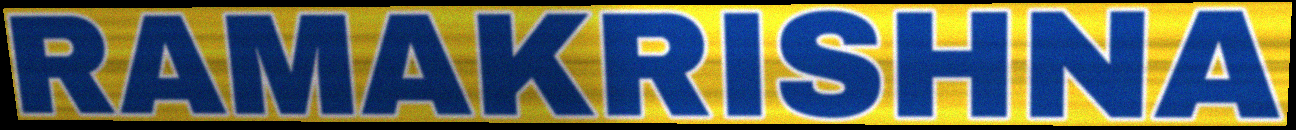
RAMAKRISHNA